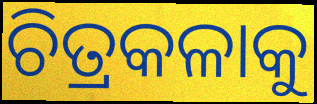
ଚିତ୍ରକଳାକୁ